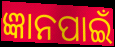
ଜ୍ଞାନପାଇଁ